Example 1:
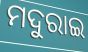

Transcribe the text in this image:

ମଦୁରାଇ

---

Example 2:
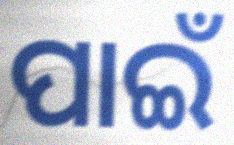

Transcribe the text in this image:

ପାଇଁ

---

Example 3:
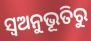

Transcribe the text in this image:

ସ୍ୱଅନୁଭୂତିରୁ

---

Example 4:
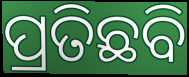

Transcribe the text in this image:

ପ୍ରତିଛବି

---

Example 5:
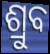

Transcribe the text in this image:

ଶ୍ରୁବ